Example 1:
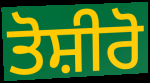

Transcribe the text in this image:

ਤੋਸ਼ੀਰੋ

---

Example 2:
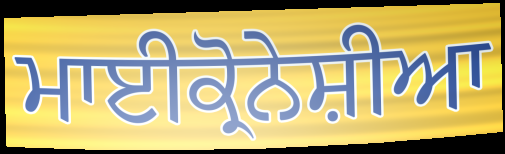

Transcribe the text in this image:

ਮਾਈਕ੍ਰੋਨੇਸ਼ੀਆ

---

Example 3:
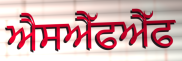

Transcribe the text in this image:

ਐਸਐੱਫਐੱਫ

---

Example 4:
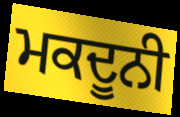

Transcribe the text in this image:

ਮਕਦੂਨੀ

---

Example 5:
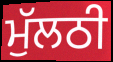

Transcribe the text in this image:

ਮੁੱਲਠੀ